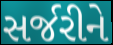
સર્જરીને